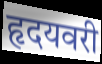
हृदयवरी